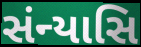
સંન્યાસિ